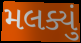
મલક્યું